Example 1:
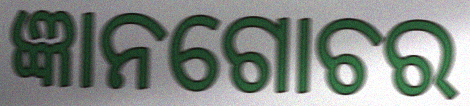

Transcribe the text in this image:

ଜ୍ଞାନଗୋଚର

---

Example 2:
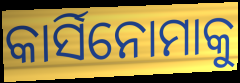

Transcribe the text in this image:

କାର୍ସିନୋମାକୁ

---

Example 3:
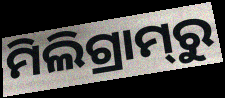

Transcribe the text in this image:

ମିଲିଗ୍ରାମ୍‌ରୁ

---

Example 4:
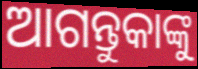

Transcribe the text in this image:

ଆଗନ୍ତୁକାଙ୍କୁ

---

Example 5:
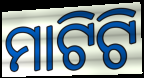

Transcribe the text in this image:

ମାଟିଟି